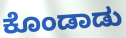
ಕೊಂಡಾಡು